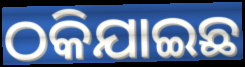
ଠକିଯାଇଛ